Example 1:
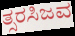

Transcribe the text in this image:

ತ್ಸರಸಿಜವ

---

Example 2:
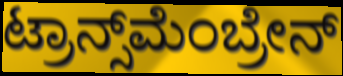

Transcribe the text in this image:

ಟ್ರಾನ್ಸ್‌ಮೆಂಬ್ರೇನ್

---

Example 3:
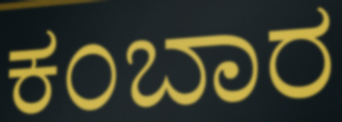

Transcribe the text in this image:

ಕಂಬಾರ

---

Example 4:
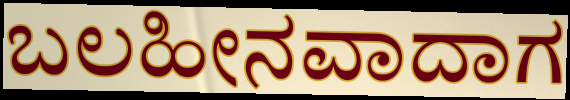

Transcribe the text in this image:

ಬಲಹೀನವಾದಾಗ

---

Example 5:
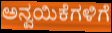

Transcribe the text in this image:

ಅನ್ವಯಿಕೆಗಳಿಗೆ